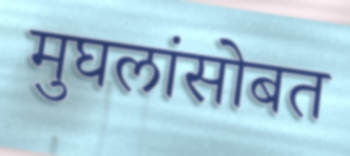
मुघलांसोबत